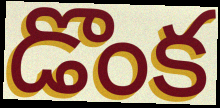
డొంక